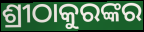
ଶ୍ରୀଠାକୁରଙ୍କର